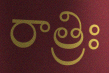
రాత్రిః